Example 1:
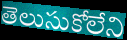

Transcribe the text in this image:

తెలుసుకోలేని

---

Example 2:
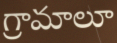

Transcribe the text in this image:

గ్రామాలూ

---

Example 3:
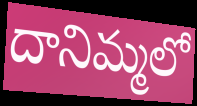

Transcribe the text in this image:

దానిమ్మలో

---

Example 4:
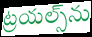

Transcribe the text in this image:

ట్రయల్స్‌ను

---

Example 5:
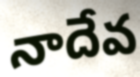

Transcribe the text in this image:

నాదేవ